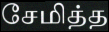
சேமித்த